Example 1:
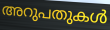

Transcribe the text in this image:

അറുപതുകൾ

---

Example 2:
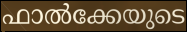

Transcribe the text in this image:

ഫാൽക്കേയുടെ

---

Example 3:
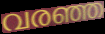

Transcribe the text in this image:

വരഞ്ഞ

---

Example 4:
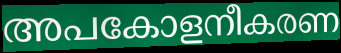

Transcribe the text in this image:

അപകോളനീകരണ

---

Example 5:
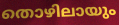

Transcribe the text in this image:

തൊഴിലായും